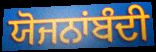
ਯੋਜਨਾਂਬੰਦੀ